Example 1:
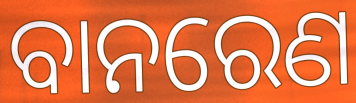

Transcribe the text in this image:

ବାନରେଣ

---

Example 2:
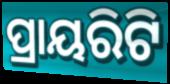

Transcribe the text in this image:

ପ୍ରାୟରିଟି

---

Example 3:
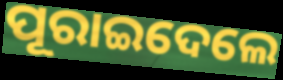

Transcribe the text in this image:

ପୂରାଇଦେଲେ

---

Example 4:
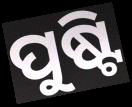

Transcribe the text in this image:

ପୁଷ୍ଟି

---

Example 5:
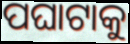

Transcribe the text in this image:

ପଘାଟାକୁ